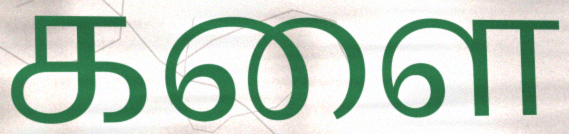
களை